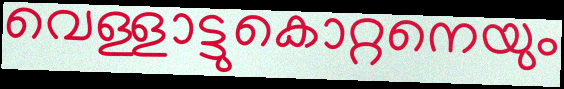
വെള്ളാട്ടുകൊറ്റനെയും